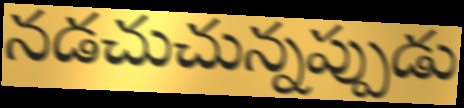
నడచుచున్నప్పుడు